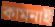
কামনাই